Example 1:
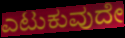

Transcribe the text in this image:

ಎಟುಕುವುದೇ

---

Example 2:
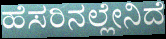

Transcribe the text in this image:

ಹೆಸರಿನಲ್ಲೇನಿದೆ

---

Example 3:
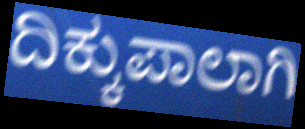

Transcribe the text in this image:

ದಿಕ್ಕುಪಾಲಾಗಿ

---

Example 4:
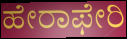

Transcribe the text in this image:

ಹೇರಾಫೇರಿ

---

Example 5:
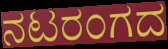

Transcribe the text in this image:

ನಟರಂಗದ